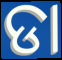
ଡା